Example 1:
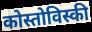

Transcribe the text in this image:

कोस्तोविस्की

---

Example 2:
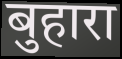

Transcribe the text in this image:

बुहारा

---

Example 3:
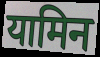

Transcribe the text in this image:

यामिन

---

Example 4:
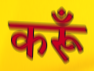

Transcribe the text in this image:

करूँ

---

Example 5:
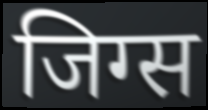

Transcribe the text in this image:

जिग्स